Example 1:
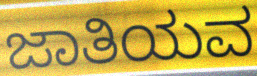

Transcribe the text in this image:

ಜಾತಿಯವ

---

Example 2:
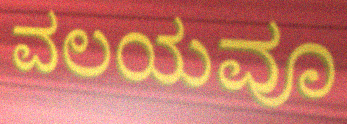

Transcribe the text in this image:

ವಲಯವೂ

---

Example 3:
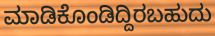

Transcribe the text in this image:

ಮಾಡಿಕೊಂಡಿದ್ದಿರಬಹುದು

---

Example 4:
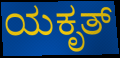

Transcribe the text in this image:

ಯಕೃತ್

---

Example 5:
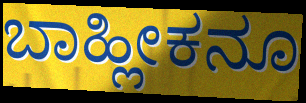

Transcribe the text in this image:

ಬಾಹ್ಲೀಕನೂ